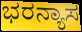
ಭರನ್ಯಾಸ